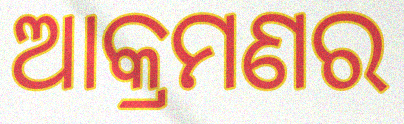
ଆକ୍ରମଣର